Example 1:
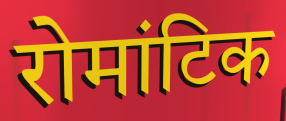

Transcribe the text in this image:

रोमांटिक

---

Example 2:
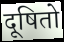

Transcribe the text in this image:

दूषितो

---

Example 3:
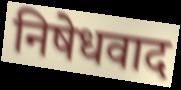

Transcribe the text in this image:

निषेधवाद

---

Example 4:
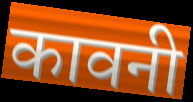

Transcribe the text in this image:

कावनी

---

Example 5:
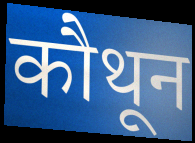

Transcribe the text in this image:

कौथून